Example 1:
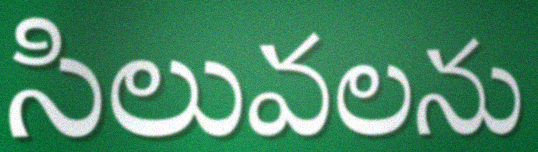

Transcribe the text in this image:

సిలువలను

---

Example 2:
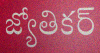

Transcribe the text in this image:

జ్యోతికర్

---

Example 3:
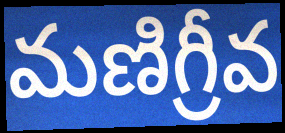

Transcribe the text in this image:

మణిగ్రీవ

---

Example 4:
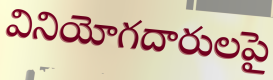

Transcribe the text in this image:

వినియోగదారులపై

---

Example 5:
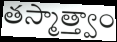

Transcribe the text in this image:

తస్మాత్త్వాం